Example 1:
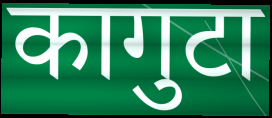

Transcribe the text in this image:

कागुटा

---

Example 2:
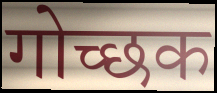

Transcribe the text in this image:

गोच्छक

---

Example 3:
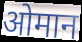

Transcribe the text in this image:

ओमान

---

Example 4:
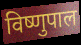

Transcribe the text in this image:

विष्णुपाल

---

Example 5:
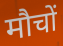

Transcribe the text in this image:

मौचों